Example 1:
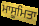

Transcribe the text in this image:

ਮਾਸੂਮਿਤਾ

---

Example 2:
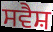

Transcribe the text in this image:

ਸਵੈਸ਼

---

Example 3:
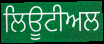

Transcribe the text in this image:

ਲਿਊਟੀਅਲ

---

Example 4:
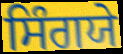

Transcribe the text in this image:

ਸਿੰਗਯੇ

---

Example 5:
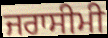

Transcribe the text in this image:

ਜਰਾਸੀਮੀ